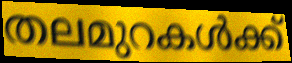
തലമുറകൾക്ക്